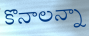
కొనాలన్నా